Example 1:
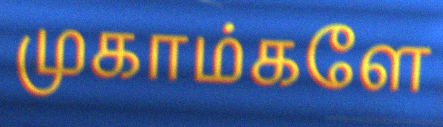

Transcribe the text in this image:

முகாம்களே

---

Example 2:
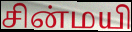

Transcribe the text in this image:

சின்மயி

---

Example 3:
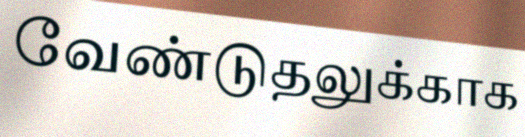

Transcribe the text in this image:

வேண்டுதலுக்காக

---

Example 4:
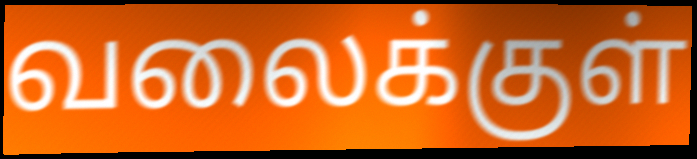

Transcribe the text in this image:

வலைக்குள்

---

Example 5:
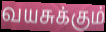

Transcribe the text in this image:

வயசுக்கும்